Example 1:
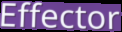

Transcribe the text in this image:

Effector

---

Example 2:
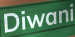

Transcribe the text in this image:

Diwani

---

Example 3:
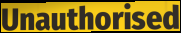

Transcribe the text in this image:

Unauthorised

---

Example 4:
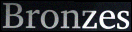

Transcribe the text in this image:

Bronzes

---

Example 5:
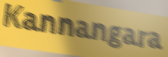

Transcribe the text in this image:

Kannangara